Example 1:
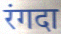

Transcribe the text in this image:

रंगदा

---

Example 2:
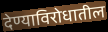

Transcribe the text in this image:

देण्याविरोधातील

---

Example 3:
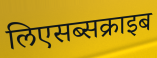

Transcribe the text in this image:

लिएसब्सक्राइब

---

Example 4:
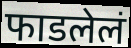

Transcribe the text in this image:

फाडलेलं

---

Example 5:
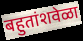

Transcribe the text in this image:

बहुतांशवेळा